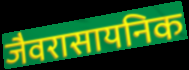
जैवरासायनिक